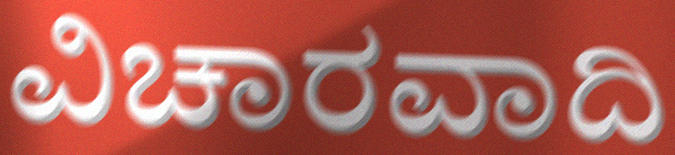
ವಿಚಾರವಾದಿ